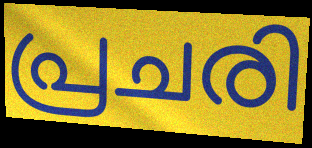
പ്രചരി